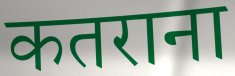
कतराना